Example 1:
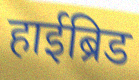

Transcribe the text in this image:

हाईब्रिड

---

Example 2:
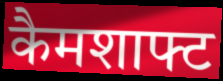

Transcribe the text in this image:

कैमशाफ्ट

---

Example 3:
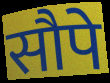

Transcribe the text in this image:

सौपे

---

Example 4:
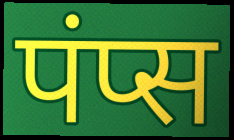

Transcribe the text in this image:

पंप्स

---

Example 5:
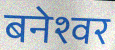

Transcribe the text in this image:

बनेश्वर